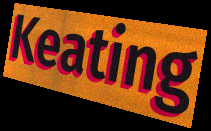
Keating